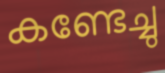
കണ്ടേച്ചു